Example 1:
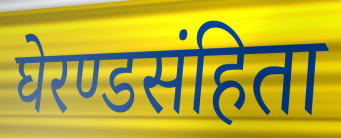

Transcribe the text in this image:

घेरण्डसंहिता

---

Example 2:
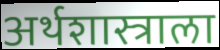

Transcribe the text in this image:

अर्थशास्त्राला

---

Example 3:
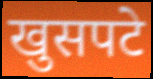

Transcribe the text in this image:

खुसपटे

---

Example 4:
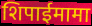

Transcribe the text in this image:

शिपाईमामा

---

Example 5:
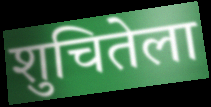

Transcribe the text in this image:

शुचितेला